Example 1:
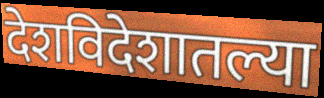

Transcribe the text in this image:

देशविदेशातल्या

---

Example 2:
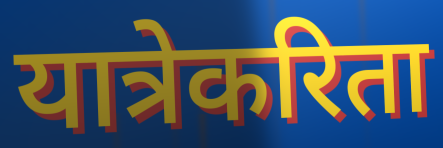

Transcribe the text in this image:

यात्रेकरिता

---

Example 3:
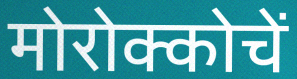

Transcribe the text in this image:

मोरोक्कोचें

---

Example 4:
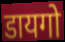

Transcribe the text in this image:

डायगो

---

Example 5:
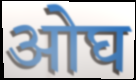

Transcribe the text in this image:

ओघ